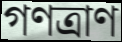
গণত্রাণ